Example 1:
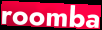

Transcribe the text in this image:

roomba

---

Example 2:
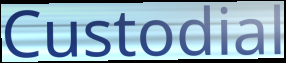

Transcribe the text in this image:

Custodial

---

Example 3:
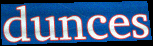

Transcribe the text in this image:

dunces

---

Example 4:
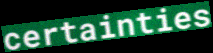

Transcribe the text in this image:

certainties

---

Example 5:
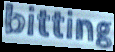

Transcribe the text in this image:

bitting